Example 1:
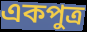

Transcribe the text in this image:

একপুত্র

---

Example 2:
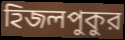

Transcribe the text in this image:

হিজলপুকুর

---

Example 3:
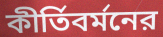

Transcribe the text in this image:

কীর্তিবর্মনের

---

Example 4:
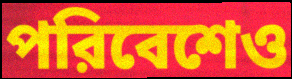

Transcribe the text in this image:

পরিবেশেও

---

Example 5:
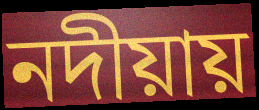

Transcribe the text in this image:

নদীয়ায়